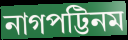
নাগপট্টিনম